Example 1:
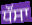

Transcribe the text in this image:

ਧੌਂਸਾ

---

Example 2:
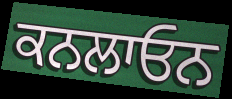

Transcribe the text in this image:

ਕਨਲਾਓਨ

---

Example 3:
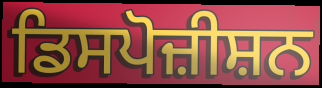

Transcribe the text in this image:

ਡਿਸਪੋਜ਼ੀਸ਼ਨ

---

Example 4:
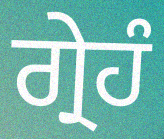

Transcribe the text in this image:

ਗ੍ਰੇਹੰ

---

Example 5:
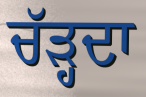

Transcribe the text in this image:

ਚੱੜ੍ਹਦਾ